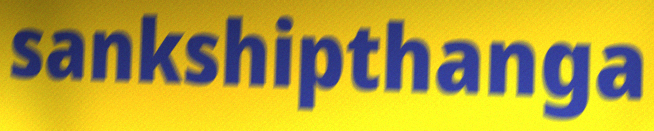
sankshipthanga